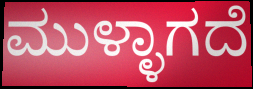
ಮುಳ್ಳಾಗದೆ